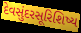
દેવસુંદરસૂરિશિષ્ય